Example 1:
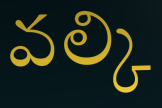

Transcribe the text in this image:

వల్కి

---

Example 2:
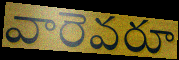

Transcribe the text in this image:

వారెవరూ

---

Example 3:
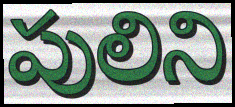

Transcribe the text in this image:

పులిని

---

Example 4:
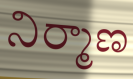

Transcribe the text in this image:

నిర్మాణ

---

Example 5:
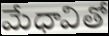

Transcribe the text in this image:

మేధావితో